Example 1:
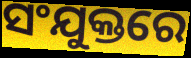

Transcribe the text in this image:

ସଂଯୁକ୍ତରେ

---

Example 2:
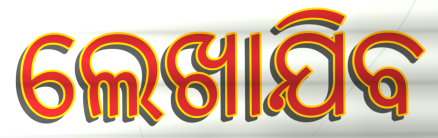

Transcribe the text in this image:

ଲେଖାଯିବ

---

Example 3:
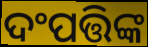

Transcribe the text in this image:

ଦଂପତ୍ତିଙ୍କ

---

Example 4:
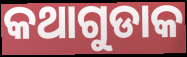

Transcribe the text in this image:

କଥାଗୁଡାକ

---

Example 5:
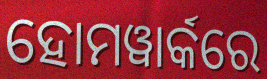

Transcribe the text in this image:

ହୋମୱାର୍କରେ